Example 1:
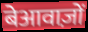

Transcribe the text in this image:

बेआवाज़ों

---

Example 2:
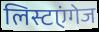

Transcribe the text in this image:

लिस्टएंगेज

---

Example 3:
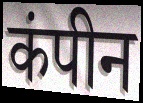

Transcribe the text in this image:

कंपीन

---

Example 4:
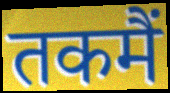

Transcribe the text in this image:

तकमैं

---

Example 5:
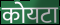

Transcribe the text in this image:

कोयटा